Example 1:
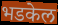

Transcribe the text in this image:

भडकेल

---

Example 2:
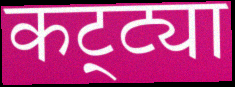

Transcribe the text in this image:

कट्ट्या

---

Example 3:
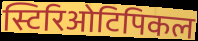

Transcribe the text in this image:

स्टिरिओटिपिकल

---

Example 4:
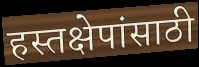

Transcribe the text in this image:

हस्तक्षेपांसाठी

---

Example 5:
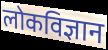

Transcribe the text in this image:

लोकविज्ञान